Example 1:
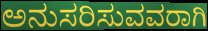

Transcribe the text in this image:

ಅನುಸರಿಸುವವರಾಗಿ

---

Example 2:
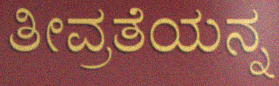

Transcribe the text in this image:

ತೀವ್ರತೆಯನ್ನ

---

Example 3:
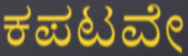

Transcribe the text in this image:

ಕಪಟವೇ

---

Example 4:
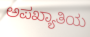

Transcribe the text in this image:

ಅಪಖ್ಯಾತಿಯ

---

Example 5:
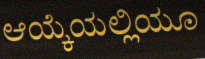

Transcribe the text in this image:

ಆಯ್ಕೆಯಲ್ಲಿಯೂ